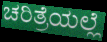
ಚರಿತ್ರೆಯಲ್ಲೆ